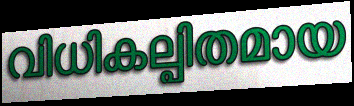
വിധികല്പിതമായ